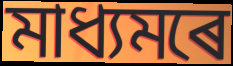
মাধ্যমৰে